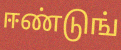
ஈண்டுங்